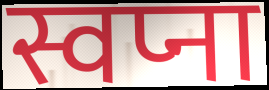
स्‍वप्‍ना